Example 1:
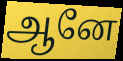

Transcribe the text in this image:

ஆனே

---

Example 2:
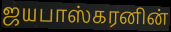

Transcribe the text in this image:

ஜயபாஸ்கரனின்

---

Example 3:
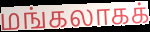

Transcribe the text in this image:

மங்கலாகக்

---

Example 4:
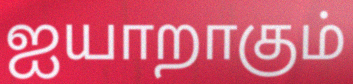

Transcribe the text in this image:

ஐயாறாகும்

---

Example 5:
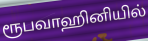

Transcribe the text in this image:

ரூபவாஹினியில்